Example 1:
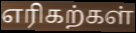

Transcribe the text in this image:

எரிகற்கள்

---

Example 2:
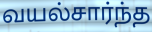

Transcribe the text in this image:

வயல்சார்ந்த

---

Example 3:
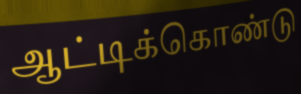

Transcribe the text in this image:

ஆட்டிக்கொண்டு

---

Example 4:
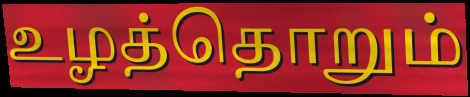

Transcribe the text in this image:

உழத்தொறும்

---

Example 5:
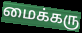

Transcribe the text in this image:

மைக்கரு